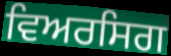
ਵਿਅਰਸਿਗ